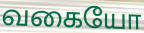
வகையோ